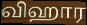
விஹார